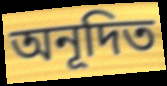
অনূদিত